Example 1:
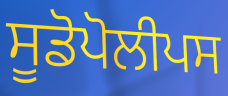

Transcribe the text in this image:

ਸੂਡੋਪੋਲੀਪਸ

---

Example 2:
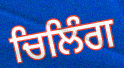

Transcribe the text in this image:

ਚਿਲਿੰਗ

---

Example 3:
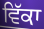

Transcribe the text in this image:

ਵਿੱਕਾ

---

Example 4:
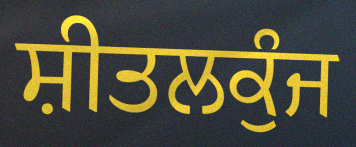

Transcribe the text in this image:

ਸ਼ੀਤਲਕੁੰਜ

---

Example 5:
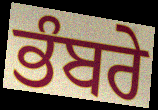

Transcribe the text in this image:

ਭੰਬਰੇ